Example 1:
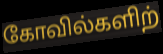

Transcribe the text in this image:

கோவில்களிற்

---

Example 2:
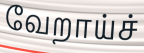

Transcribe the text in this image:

வேறாய்ச்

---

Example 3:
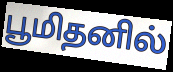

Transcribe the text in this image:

பூமிதனில்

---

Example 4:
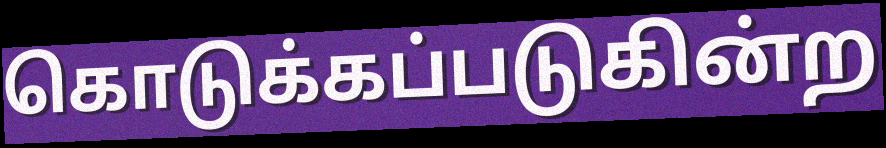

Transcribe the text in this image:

கொடுக்கப்படுகின்ற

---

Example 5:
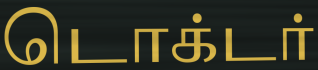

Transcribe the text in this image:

டொக்டர்